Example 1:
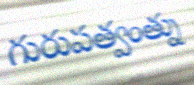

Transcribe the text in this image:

గురుపత్వంత్ను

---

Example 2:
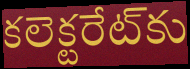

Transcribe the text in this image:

కలెక్టరేట్‌కు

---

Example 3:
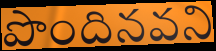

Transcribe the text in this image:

పొందినవని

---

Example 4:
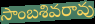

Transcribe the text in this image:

సాంబశివరావు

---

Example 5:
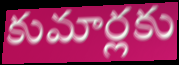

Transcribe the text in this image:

కుమార్లకు